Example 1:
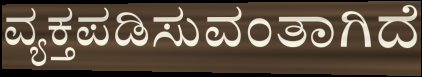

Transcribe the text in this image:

ವ್ಯಕ್ತಪಡಿಸುವಂತಾಗಿದೆ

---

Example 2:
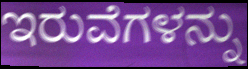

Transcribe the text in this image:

ಇರುವೆಗಳನ್ನು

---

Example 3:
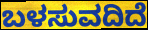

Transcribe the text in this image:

ಬಳಸುವದಿದೆ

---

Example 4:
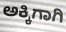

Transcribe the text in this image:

ಅಕ್ಕಿಗಾಗಿ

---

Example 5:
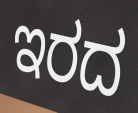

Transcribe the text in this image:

ಇರದ